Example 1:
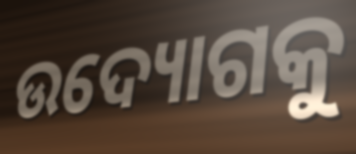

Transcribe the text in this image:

ଉଦ୍ୟୋଗକୁ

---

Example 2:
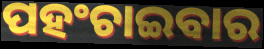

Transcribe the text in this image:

ପହଂଚାଇବାର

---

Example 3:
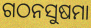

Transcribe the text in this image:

ଗଠନସୁଷମା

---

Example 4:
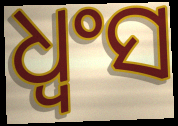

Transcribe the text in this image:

ଧ୍ଵଂସ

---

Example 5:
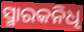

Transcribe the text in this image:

ସ୍ମାରକନିଧି